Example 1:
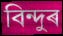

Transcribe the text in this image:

বিন্দুৰ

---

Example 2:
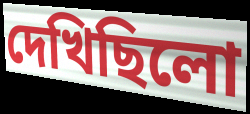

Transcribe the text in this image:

দেখিছিলো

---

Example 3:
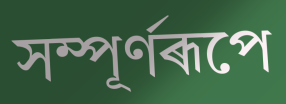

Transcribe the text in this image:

সম্পূৰ্ণৰূপে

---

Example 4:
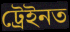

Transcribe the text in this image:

ট্ৰেইনত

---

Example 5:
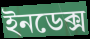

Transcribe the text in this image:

ইনডেক্স